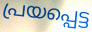
പ്രയപ്പെട്ട